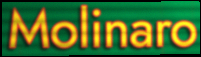
Molinaro